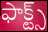
ఫాక్ట్స్